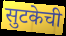
सुटकेची